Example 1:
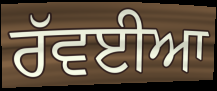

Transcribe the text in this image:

ਰੱਵਈਆ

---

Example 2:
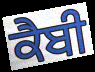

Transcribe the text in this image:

ਕੈਬੀ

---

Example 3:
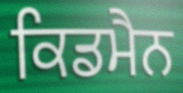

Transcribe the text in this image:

ਕਿਡਮੈਨ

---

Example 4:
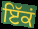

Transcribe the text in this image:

ਇੱਕਂ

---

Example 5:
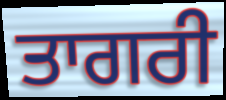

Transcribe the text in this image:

ਤਾਗਰੀ